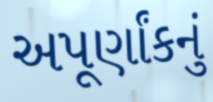
અપૂર્ણાંકનું